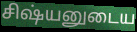
சிஷ்யனுடைய